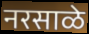
नरसाळे